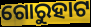
ଗୋରୁହାଟ